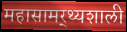
महासामर्थ्यशाली